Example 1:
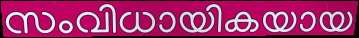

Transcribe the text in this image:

സംവിധായികയായ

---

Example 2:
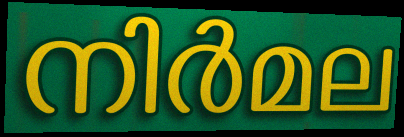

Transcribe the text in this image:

നിർമല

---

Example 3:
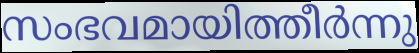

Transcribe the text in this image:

സംഭവമായിത്തീർന്നു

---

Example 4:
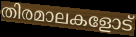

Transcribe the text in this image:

തിരമാലകളോട്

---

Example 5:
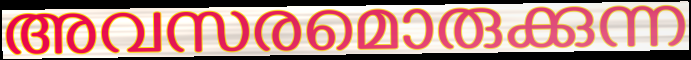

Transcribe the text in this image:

അവസരമൊരുക്കുന്ന